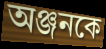
অঞ্জনকে